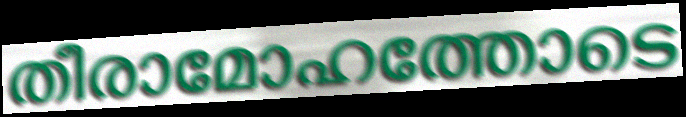
തീരാമോഹത്തോടെ